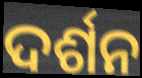
ଦର୍ଶନ